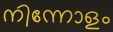
നിന്നോളം